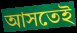
আসতেই